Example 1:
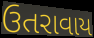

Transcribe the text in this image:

ઉતરાવાય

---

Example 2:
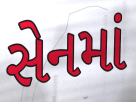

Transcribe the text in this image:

સેનમાં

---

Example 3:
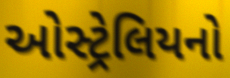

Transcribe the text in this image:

ઓસ્ટ્રેલિયનો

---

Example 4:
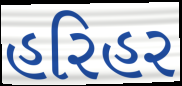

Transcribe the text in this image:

હરિહર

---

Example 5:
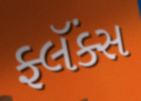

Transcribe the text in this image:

ફ્લૅંક્સ